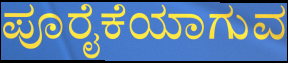
ಪೂರೈಕೆಯಾಗುವ